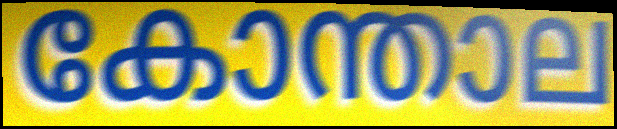
കോന്താല